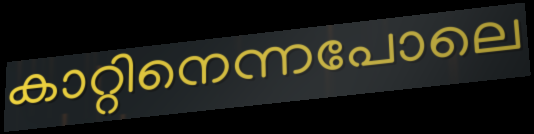
കാറ്റിനെന്നപോലെ